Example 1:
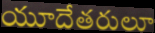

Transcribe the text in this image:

యూదేతరులూ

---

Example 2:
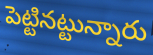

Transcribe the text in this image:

పెట్టినట్టున్నారు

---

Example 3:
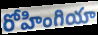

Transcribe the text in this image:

రోహింగియా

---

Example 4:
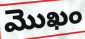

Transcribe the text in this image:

మొఖం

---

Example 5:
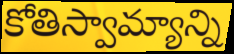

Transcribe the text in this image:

కోతిస్వామ్యాన్ని